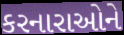
કરનારાઓને